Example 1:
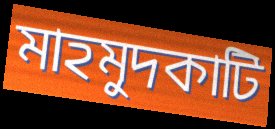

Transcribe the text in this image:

মাহমুদকাটি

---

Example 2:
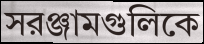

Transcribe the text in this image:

সরঞ্জামগুলিকে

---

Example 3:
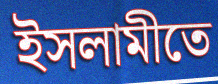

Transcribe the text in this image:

ইসলামীতে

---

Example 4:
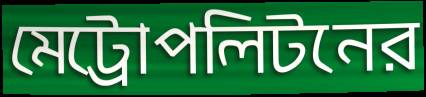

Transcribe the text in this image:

মেট্রোপলিটনের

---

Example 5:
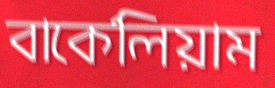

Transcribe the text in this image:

বার্কেলিয়াম